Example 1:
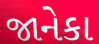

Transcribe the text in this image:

જાનેકા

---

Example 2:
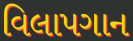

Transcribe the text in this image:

વિલાપગાન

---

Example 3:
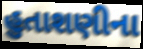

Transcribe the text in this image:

હુતાશણીના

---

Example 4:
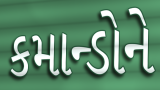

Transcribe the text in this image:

કમાન્ડોને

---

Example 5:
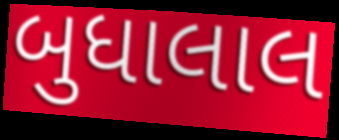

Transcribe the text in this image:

બુધાલાલ